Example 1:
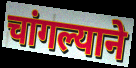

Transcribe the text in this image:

चांगल्याने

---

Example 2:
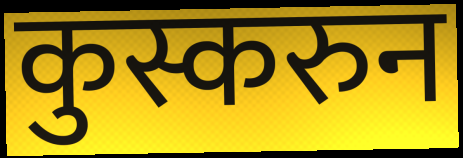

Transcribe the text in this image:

कुस्करुन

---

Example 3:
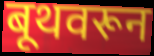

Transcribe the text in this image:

बूथवरून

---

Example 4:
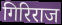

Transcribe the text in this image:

गिरिराज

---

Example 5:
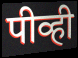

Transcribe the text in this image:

पीव्ही